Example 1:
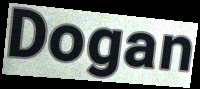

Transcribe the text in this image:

Dogan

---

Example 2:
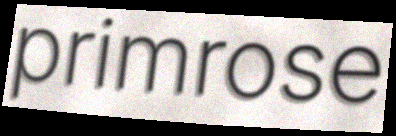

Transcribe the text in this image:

primrose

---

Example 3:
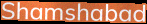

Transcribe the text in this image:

Shamshabad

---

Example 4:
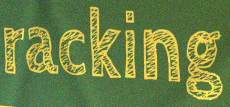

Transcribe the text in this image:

racking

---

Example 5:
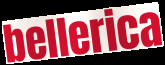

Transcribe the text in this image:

bellerica